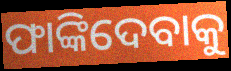
ଫାଙ୍କିଦେବାକୁ